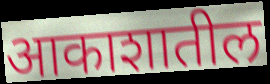
आकाशातील